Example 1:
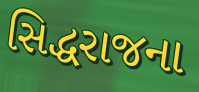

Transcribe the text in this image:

સિદ્ધરાજના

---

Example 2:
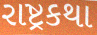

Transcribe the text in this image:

રાષ્ટ્રકથા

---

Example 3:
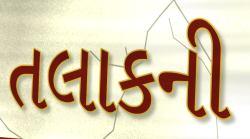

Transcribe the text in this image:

તલાકની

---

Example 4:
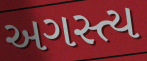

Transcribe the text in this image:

અગસ્ત્ય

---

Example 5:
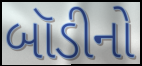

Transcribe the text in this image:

બૉડીનો